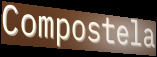
Compostela